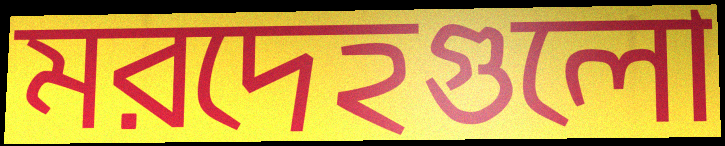
মরদেহগুলো